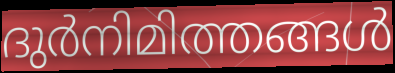
ദുർനിമിത്തങ്ങൾ